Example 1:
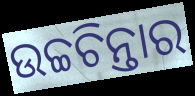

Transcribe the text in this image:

ଉଚ୍ଚଚିନ୍ତାର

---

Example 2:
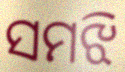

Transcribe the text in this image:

ସମଝି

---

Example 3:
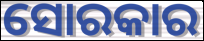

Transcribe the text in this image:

ସୋରକାର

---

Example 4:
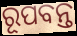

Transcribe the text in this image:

ରୂପବନ୍ତ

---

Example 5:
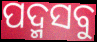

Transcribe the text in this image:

ପଦ୍ମସବୁ